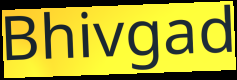
Bhivgad